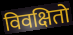
विवक्षितो